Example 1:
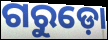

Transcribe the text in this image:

ଗରୁଡ଼ୋ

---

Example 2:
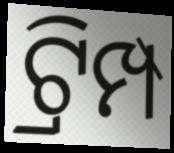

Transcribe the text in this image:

ଟ୍ରିମ୍ପ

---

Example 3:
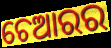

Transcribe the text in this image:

ଚେଆରର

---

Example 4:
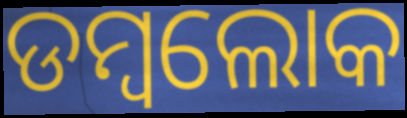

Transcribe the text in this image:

ଡମ୍ବଲୋକ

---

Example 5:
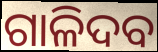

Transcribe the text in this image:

ଗାଳିଦବ